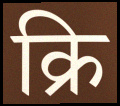
क्रि